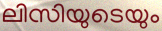
ലിസിയുടെയും